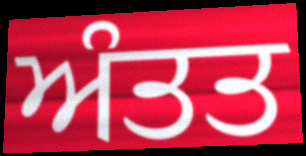
ਅੰਤਤ